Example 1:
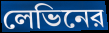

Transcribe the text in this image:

লেভিনের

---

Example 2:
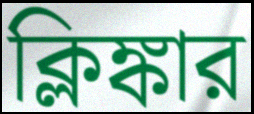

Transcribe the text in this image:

ক্লিঙ্কার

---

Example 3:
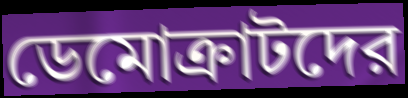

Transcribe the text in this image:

ডেমোক্রাটদের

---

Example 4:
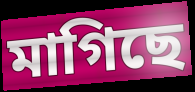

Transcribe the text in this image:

মাগিছে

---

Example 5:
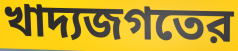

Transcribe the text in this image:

খাদ্যজগতের